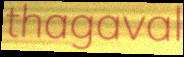
thagaval